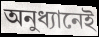
অনুধ্যানেই